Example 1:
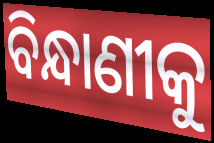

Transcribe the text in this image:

ବିନ୍ଧାଣୀକୁ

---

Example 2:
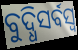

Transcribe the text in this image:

ବୁଦ୍ଧିସର୍ବସ୍ୱ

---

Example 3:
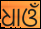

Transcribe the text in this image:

ଧାଓଁ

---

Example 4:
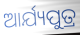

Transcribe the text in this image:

ଆର୍ଯ୍ୟପୁତ୍ର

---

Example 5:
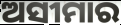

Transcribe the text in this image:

ଅସୀମାର